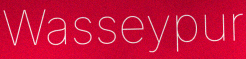
Wasseypur